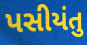
પસીયંતુ